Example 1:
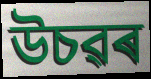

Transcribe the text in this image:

উচৱৰ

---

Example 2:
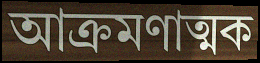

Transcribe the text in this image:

আক্ৰমণাত্মক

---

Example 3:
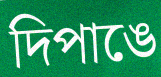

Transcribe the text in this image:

দিপাঙে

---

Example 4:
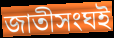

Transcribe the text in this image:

জাতীসংঘই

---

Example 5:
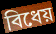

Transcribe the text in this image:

বিধেয়